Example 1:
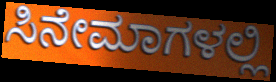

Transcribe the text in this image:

ಸಿನೇಮಾಗಳಲ್ಲಿ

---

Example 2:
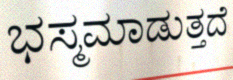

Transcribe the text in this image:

ಭಸ್ಮಮಾಡುತ್ತದೆ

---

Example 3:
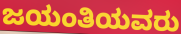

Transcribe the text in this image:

ಜಯಂತಿಯವರು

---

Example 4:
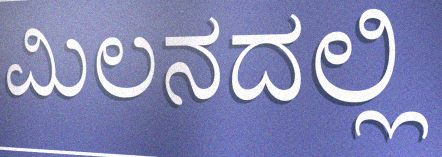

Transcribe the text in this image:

ಮಿಲನದಲ್ಲಿ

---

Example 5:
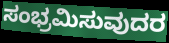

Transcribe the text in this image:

ಸಂಭ್ರಮಿಸುವುದರ